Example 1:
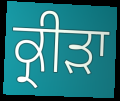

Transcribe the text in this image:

ਕ੍ਰੀੜਾ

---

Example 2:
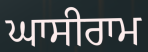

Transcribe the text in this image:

ਘਾਸੀਰਾਮ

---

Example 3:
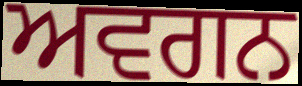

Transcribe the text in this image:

ਅਵਗਨ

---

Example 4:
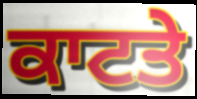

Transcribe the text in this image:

ਕਾਟਤੇ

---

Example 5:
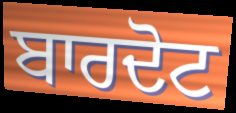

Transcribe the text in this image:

ਬਾਰਦੋਟ